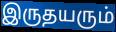
இருதயரும்